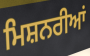
ਮਿਸ਼ਨਰੀਆਂ